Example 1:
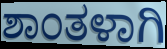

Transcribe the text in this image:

ಶಾಂತಳಾಗಿ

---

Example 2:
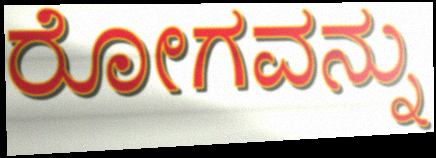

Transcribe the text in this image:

ರೋಗವನ್ನು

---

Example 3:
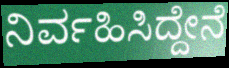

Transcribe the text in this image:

ನಿರ್ವಹಿಸಿದ್ದೇನೆ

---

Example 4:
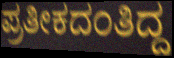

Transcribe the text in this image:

ಪ್ರತೀಕದಂತಿದ್ದ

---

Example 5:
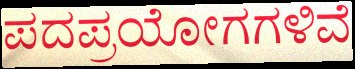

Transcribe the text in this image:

ಪದಪ್ರಯೋಗಗಳಿವೆ